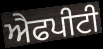
ਐਫਪੀਟੀ